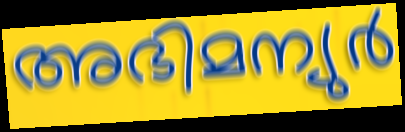
അഭിമന്യുർ